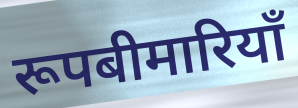
रूपबीमारियाँ